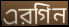
এরগিন